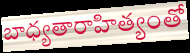
బాధ్యతారాహిత్యంతో